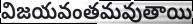
విజయవంతమవుతాయి